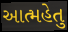
આત્મહેતુ